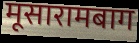
मूसारामबाग